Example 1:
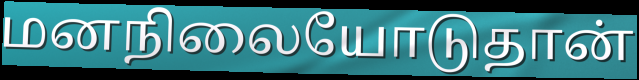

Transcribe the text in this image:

மனநிலையோடுதான்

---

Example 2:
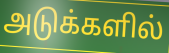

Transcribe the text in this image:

அடுக்களில்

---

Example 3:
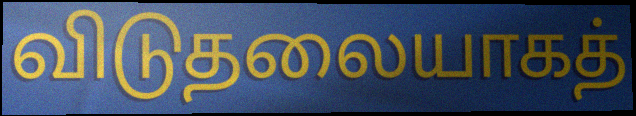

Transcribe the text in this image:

விடுதலையாகத்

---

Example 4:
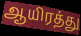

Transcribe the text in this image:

ஆயிரத்து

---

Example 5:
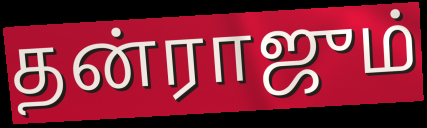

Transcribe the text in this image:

தன்ராஜும்